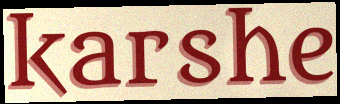
karshe